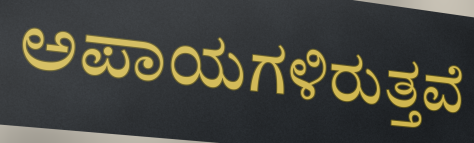
ಅಪಾಯಗಳಿರುತ್ತವೆ